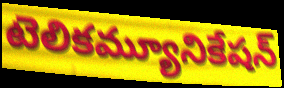
టెలికమ్యూనికేషన్